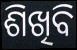
ଶିଖିବି